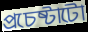
প্ৰচেষ্টাটো